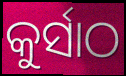
କୁର୍ସାଠ